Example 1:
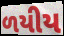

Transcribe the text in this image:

ળયીય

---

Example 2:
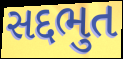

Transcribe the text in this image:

સદ્દભુત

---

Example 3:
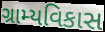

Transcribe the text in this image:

ગ્રામ્યવિકાસ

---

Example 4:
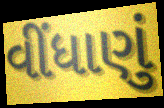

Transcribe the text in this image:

વીંધાણું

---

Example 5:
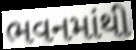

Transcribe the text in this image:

ભવનમાંથી